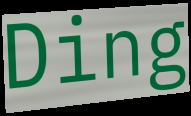
Ding